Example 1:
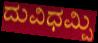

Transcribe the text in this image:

ದುವಿಧಮ್ಪಿ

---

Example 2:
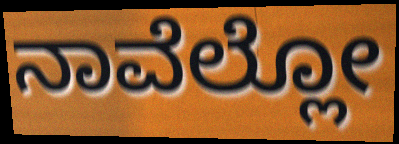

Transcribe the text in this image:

ನಾವೆಲ್ಲೋ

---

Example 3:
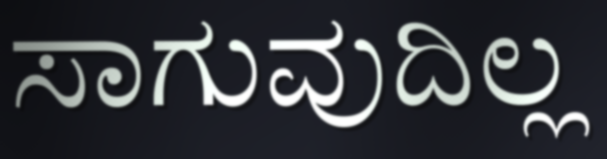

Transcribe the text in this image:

ಸಾಗುವುದಿಲ್ಲ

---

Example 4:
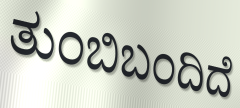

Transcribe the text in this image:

ತುಂಬಿಬಂದಿದೆ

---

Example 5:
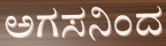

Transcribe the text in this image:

ಅಗಸನಿಂದ